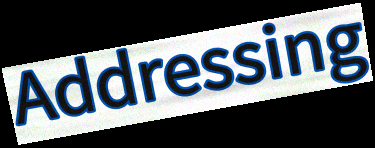
Addressing